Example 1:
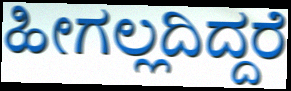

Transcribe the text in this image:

ಹೀಗಲ್ಲದಿದ್ದರೆ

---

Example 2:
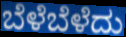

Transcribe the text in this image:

ಬೆಳೆಬೆಳೆದು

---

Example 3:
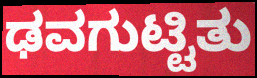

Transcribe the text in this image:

ಢವಗುಟ್ಟಿತು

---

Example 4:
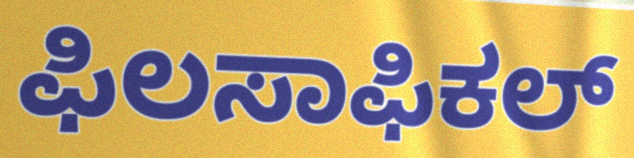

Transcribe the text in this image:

ಫಿಲಸಾಫಿಕಲ್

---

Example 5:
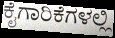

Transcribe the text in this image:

ಕೈಗಾರಿಕೆಗಳಲ್ಲಿ